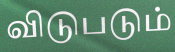
விடுபடும்